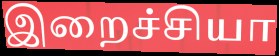
இறைச்சியா